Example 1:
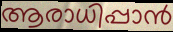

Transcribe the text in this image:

ആരാധിപ്പാൻ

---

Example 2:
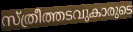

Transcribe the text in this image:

സ്ത്രീത്തടവുകാരുടെ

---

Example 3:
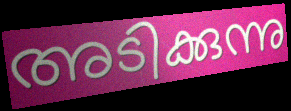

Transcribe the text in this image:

അടിക്കുന്നു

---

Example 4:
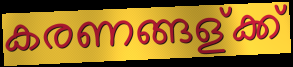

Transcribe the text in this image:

കരണങ്ങള്ക്ക്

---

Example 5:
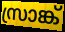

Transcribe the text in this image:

സ്രാങ്ക്